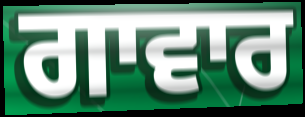
ਗਾਵਾਰ